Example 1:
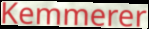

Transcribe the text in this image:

Kemmerer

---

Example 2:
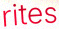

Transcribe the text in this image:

rites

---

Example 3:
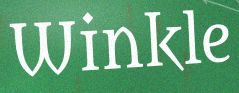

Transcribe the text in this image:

Winkle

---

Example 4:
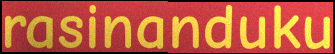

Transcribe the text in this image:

rasinanduku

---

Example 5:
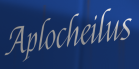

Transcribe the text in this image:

Aplocheilus